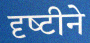
दृष्‍टीने